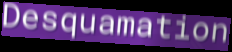
Desquamation